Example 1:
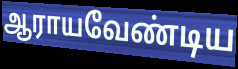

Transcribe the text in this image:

ஆராயவேண்டிய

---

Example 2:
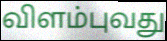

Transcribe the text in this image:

விளம்புவது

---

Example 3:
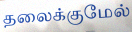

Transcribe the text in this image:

தலைக்குமேல்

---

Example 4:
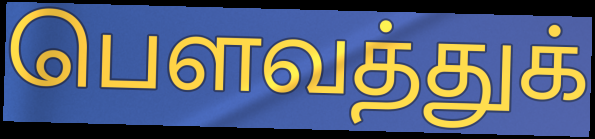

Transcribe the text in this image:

பௌவத்துக்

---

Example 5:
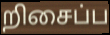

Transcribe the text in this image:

றிசைப்ப